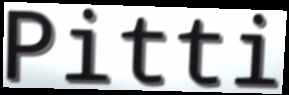
Pitti